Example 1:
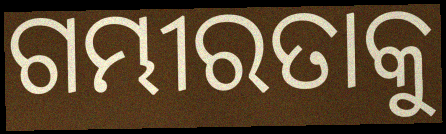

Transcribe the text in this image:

ଗମ୍ଭୀରତାକୁ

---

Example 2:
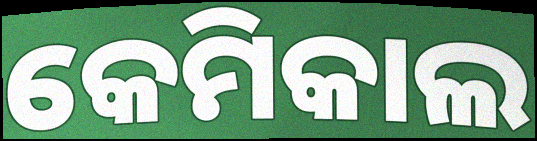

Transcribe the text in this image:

କେମିକାଲ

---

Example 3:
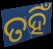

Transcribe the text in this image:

ତହିଁ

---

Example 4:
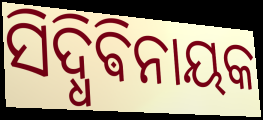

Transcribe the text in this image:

ସିଦ୍ଧିଵିନାୟକ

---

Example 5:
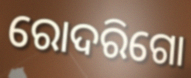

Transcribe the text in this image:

ରୋଦରିଗୋ